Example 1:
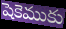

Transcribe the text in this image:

షెకెముకు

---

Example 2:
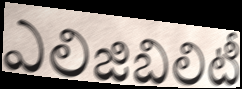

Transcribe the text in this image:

ఎలిజిబిలిటీ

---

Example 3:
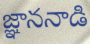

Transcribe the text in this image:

జ్ఞాననాడి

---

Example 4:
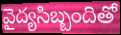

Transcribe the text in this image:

వైద్యసిబ్బందితో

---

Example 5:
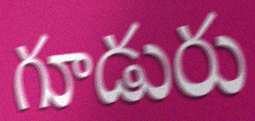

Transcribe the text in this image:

గూడురు